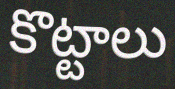
కొట్టాలు